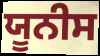
ਯੂਨੀਸ